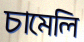
চামেলি